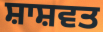
ਸ਼ਾਸ਼ਵਤ